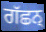
ਗੱਛਨ੍